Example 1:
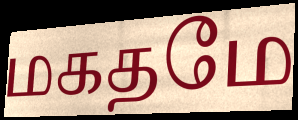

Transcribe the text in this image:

மகதமே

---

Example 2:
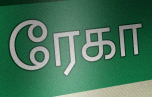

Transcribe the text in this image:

ரேகா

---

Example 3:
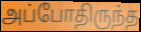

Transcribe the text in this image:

அப்போதிருந்த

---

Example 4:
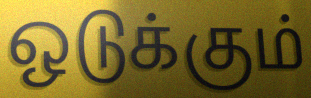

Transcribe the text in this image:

ஒடுக்கும்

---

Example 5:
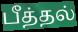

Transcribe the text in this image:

பீத்தல்